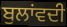
ਬੁਲਾਂਵਦੀ